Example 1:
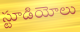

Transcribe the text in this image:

స్టూడియోలు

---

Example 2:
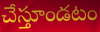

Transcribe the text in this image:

చేస్తూండటం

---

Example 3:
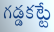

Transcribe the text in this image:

గడ్డకట్టే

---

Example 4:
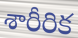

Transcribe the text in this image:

శారీరిక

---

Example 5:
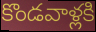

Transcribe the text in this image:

కొండవాళ్లకి